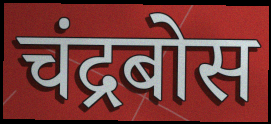
चंद्रबोस